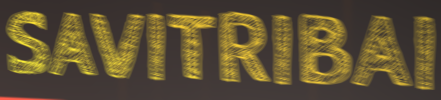
SAVITRIBAI